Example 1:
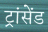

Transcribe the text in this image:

ट्रांसेंड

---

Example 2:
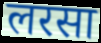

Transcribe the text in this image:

लरसा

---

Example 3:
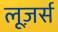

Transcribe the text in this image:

लूज़र्स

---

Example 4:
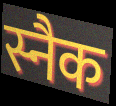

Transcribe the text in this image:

स्नैक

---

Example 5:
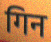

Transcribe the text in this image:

गिन